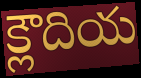
క్లౌదియ